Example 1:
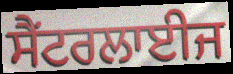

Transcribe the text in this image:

ਸੈਂਟਰਲਾਈਜ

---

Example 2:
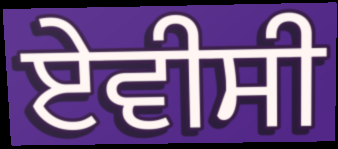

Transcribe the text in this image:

ਏਵੀਸੀ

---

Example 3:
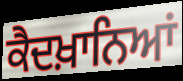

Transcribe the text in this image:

ਕੈਦਖ਼ਾਨਿਆਂ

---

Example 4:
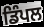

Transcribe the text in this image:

ਡਿੰਪਲ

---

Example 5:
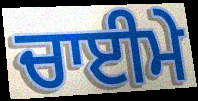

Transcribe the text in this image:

ਚਾਈਮੇ